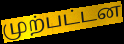
முற்பட்டன